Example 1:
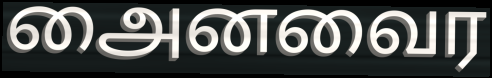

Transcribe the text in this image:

அைனவைர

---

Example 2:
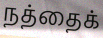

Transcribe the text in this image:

நத்தைக்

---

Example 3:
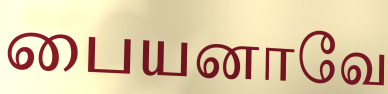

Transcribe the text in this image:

பையனாவே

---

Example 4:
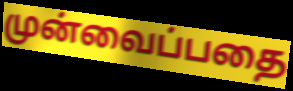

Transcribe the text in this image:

முன்வைப்பதை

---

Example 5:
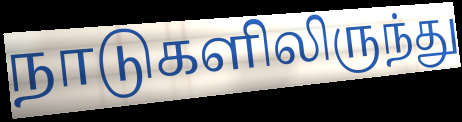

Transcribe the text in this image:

நாடுகளிலிருந்து